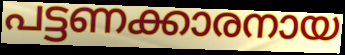
പട്ടണക്കാരനായ